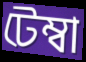
টেম্বা